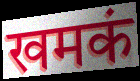
खमकं